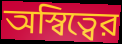
অস্বিত্বের